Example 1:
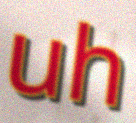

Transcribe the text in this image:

uh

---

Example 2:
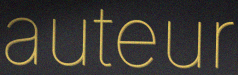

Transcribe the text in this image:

auteur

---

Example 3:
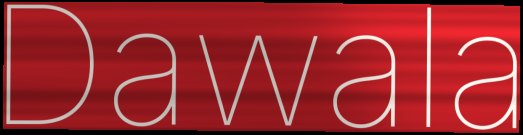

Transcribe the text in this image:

Dawala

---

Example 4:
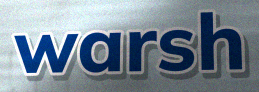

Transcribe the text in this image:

warsh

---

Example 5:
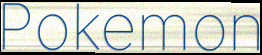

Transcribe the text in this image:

Pokemon